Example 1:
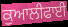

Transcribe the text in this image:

ਕੁਆਲੀਫਾਈ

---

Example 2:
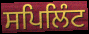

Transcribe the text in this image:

ਸਪਿਲਿੰਟ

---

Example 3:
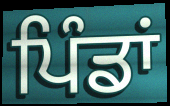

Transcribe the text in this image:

ਪਿੰਡਾਂ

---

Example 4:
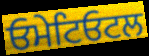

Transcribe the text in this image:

ਓਮੇਟਿਓਟਲ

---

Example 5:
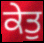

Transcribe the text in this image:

ਕੇਤੁ